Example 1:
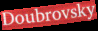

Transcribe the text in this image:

Doubrovsky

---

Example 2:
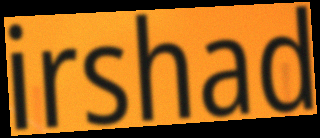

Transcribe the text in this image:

irshad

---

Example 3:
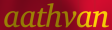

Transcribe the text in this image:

aathvan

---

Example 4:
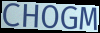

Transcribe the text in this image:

CHOGM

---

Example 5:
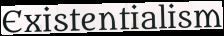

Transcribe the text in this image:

Existentialism